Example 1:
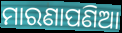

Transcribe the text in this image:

ମାରଣାପଣିଆ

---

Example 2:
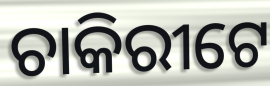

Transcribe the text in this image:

ଚାକିରୀଟେ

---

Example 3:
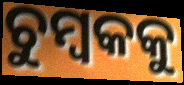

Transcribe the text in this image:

ଚୁମ୍ବକକୁ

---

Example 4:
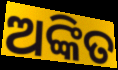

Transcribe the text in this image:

ଅଙ୍କିତ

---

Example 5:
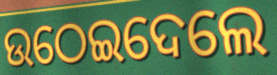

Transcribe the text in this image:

ଉଠେଇଦେଲେ